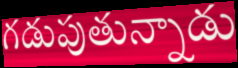
గడుపుతున్నాడు